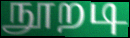
நூறடி